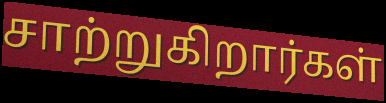
சாற்றுகிறார்கள்